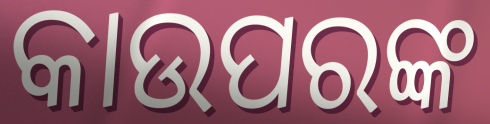
କାଉପରଙ୍କ